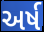
અર્ષ